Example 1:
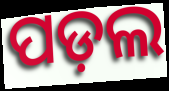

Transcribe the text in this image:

ପଡ଼ଲ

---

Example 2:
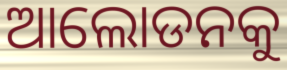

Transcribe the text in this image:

ଆଲୋଡନକୁ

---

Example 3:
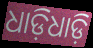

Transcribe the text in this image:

ଧାଡ଼ିଧାଡ଼ି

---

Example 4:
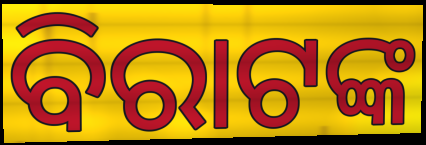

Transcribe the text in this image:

ବିରାଟଙ୍କ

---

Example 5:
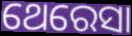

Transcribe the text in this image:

ଥେରେସା